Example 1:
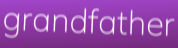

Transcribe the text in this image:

grandfather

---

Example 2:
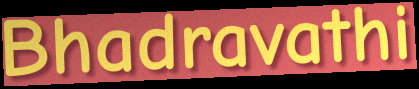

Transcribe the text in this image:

Bhadravathi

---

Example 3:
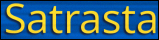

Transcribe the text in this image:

Satrasta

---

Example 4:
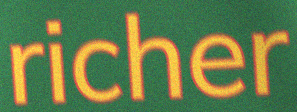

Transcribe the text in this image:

richer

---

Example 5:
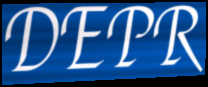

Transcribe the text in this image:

DEPR